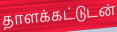
தாளக்கட்டுடன்